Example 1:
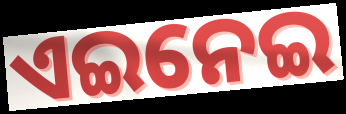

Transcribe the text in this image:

ଏଇନେଇ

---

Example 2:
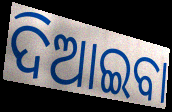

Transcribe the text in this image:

ଦିଆଇବା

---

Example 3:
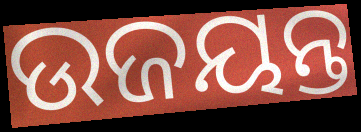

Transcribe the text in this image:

ଉଜୟନ୍ତ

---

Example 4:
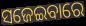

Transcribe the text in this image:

ସଜେଇବାରେ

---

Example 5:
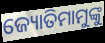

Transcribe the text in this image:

ଜ୍ୟୋତିମାମୁଙ୍କୁ